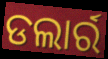
ଡଲାର୍ର